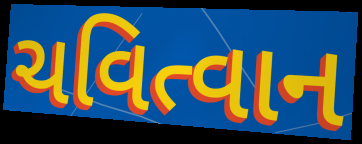
ચવિત્વાન